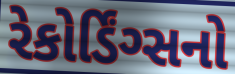
રેકોર્ડિંગ્સનો